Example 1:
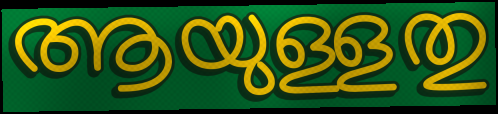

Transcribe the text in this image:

ആയുള്ളതു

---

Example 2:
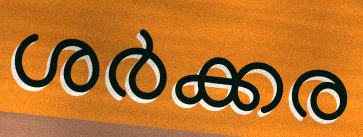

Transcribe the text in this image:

ശർക്കര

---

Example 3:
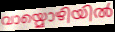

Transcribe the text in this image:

വായ്മൊഴിയിൽ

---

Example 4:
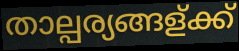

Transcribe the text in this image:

താല്പര്യങ്ങള്ക്ക്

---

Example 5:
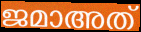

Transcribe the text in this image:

ജമാഅത്